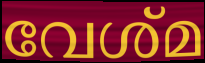
വേശ്മ